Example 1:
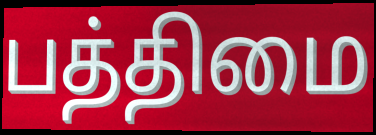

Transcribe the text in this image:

பத்திமை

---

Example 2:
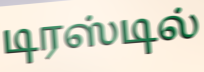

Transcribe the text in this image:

டிரஸ்டில்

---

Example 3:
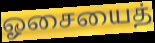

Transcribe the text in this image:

ஓசையைத்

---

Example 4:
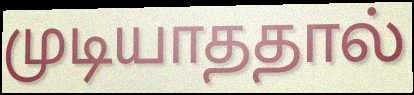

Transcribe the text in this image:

முடியாததால்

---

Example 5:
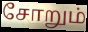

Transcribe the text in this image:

சோறும்